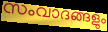
സംവാദങ്ങളും